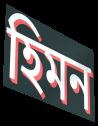
হিমন